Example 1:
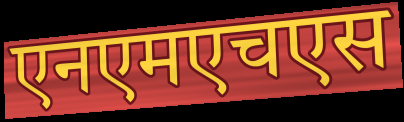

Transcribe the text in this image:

एनएमएचएस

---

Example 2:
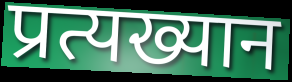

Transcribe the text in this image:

प्रत्यख्यान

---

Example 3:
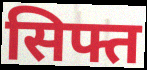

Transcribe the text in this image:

सिफ्त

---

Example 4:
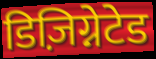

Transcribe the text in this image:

डिज़िग्नेटेड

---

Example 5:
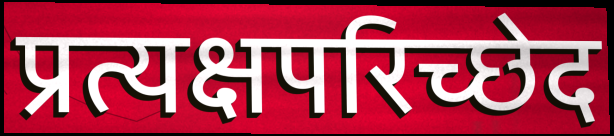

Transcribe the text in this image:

प्रत्यक्षपरिच्छेद